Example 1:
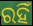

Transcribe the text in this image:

ରହିଁ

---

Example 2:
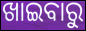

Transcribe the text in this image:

ଖାଇବାରୁ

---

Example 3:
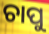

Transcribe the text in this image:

ଚାପୁ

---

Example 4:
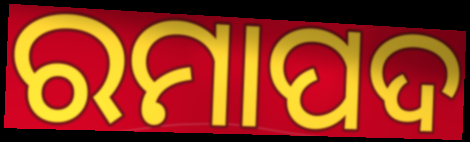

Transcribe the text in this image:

ରମାପଦ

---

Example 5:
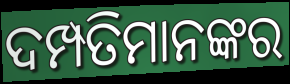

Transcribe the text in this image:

ଦମ୍ପତିମାନଙ୍କର